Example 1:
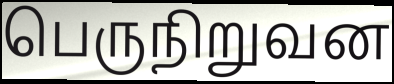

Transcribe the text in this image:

பெருநிறுவன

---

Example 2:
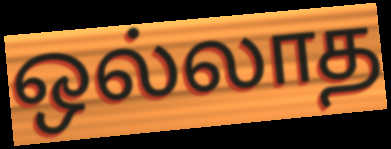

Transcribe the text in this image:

ஒல்லாத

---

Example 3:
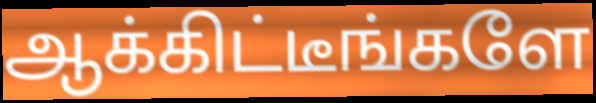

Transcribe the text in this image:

ஆக்கிட்டீங்களே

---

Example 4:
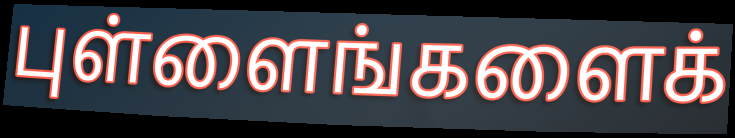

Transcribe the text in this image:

புள்ளைங்களைக்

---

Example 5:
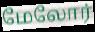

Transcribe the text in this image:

மேலோர்